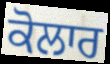
ਕੋਲਾਰ